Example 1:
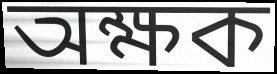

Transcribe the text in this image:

অক্ষক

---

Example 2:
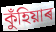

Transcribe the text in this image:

কুঁহিয়াৰ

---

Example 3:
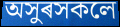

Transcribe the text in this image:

অসুৰসকলে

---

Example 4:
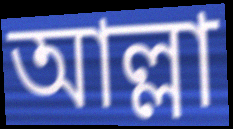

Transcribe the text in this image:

আল্লা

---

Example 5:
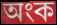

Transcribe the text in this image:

অংক